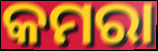
କମରା